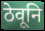
ठेवूनि